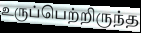
உருப்பெற்றிருந்த